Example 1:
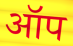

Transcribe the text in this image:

ऑप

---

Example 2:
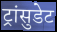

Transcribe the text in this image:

ट्रांसुडेट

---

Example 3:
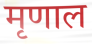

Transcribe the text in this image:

मृणाल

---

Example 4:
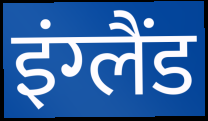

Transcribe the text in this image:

इंग्‍लैंड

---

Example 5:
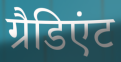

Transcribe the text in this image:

ग्रैडिएंट